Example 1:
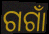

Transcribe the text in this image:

ଗଗାଁ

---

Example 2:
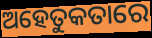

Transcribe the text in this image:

ଅହେତୁକତାରେ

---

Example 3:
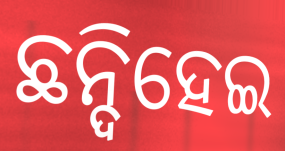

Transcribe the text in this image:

ଛନ୍ଦିହେଇ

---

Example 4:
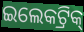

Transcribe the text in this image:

ଇଲେକଟ୍ରିକ୍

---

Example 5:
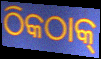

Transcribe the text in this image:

ଠିକଠାକ୍